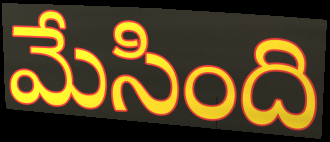
మేసింది